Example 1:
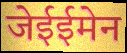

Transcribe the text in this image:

जेईईमेन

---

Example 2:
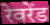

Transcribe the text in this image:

रेवरेंड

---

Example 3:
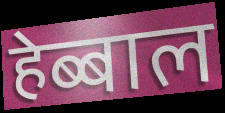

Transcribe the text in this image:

हेब्बाल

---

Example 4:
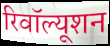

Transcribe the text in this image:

रिवॉल्यूशन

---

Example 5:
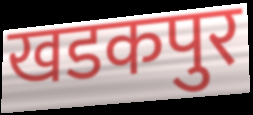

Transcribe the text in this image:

खडकपुर